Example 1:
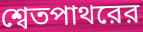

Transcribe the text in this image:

শ্বেতপাথরের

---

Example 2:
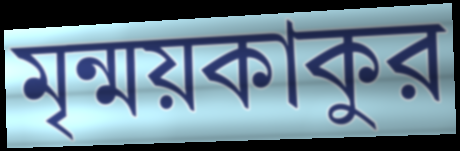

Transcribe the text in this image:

মৃন্ময়কাকুর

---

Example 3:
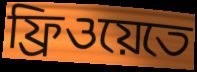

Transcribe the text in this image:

ফ্রিওয়েতে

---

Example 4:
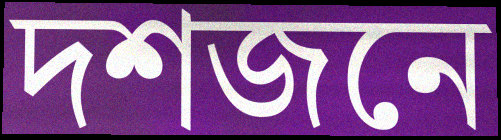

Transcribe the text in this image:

দশজনে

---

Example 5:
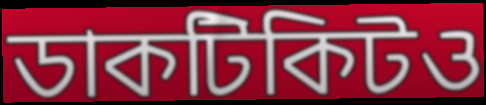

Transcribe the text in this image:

ডাকটিকিটও